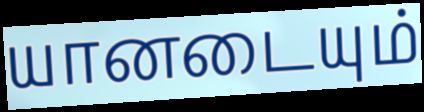
யானடையும்